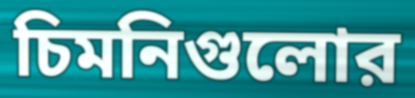
চিমনিগুলোর